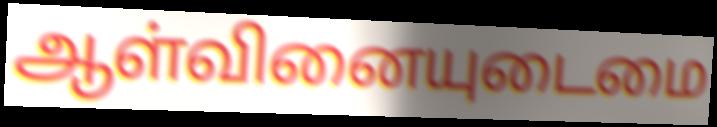
ஆள்வினையுடைமை